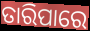
ତାରିପାରେ